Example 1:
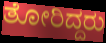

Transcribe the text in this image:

ತೋರಿದ್ದರು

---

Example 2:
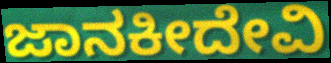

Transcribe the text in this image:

ಜಾನಕೀದೇವಿ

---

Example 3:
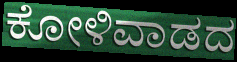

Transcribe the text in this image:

ಕೋಳಿವಾಡದ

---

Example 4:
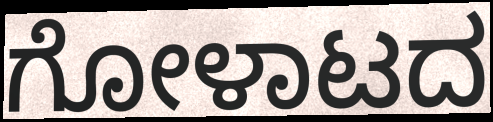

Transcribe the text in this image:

ಗೋಳಾಟದ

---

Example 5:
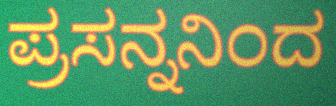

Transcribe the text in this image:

ಪ್ರಸನ್ನನಿಂದ